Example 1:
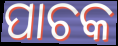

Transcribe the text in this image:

ପାଚକ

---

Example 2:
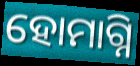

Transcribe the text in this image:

ହୋମାଗ୍ନି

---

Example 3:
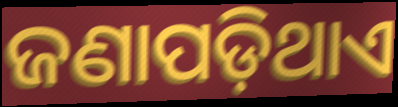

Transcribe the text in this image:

ଜଣାପଡ଼ିଥାଏ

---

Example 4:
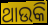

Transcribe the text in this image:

ଥାଉକି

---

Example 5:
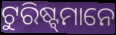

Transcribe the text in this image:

ଟୁରିଷ୍ଟ୍‍ମାନେ